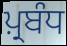
ਪ਼੍ਰਬੰਧ